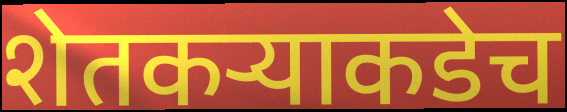
शेतकऱ्याकडेच